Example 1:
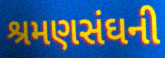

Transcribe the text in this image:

શ્રમણસંઘની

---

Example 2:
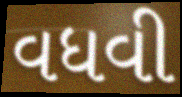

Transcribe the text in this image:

વધવી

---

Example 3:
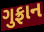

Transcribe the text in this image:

ગુફ્રાન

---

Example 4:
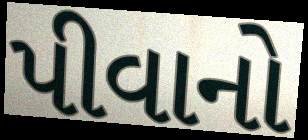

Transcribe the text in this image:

પીવાનો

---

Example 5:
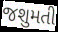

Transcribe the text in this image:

જશુમતી